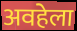
अवहेला